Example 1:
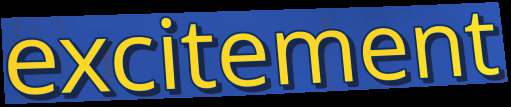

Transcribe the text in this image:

excitement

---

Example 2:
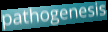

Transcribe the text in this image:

pathogenesis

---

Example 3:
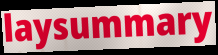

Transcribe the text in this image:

laysummary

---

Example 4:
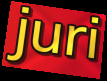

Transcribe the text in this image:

juri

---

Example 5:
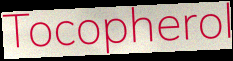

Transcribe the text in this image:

Tocopherol